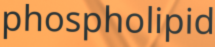
phospholipid